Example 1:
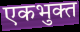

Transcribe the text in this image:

एकभुक्त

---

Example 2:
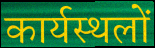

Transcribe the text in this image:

कार्यस्थलों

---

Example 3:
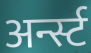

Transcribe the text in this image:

अर्न्स्ट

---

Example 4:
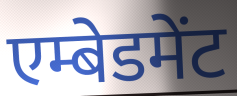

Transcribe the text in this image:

एम्बेडमेंट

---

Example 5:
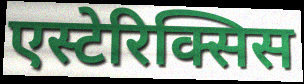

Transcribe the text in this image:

एस्टेरिक्सिस